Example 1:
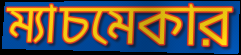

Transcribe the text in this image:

ম্যাচমেকার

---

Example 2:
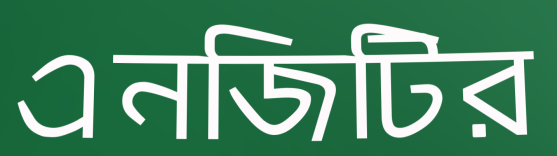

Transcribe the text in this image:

এনজিটির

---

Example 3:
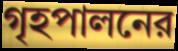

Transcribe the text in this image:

গৃহপালনের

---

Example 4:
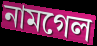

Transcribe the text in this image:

নামগেল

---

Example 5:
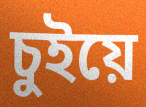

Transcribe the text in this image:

চুইয়ে